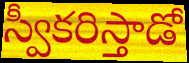
స్వీకరిస్తాడో